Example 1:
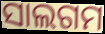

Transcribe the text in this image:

ସାଲଗମ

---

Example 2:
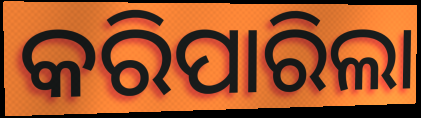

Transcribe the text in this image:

କରିପାରିଲା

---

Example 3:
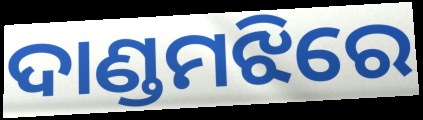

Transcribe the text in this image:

ଦାଣ୍ଡମଝିରେ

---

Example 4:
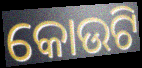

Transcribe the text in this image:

କୋଉଟି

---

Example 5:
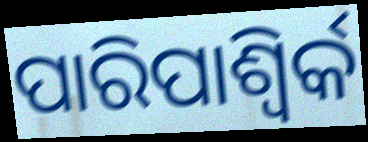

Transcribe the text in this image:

ପାରିପାଶ୍ୱିର୍କ